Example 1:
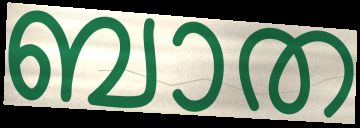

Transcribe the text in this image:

ബാത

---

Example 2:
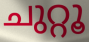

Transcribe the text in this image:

ചുറ്റൂ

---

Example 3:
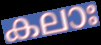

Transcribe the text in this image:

കലാഃ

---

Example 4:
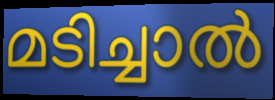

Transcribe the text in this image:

മടിച്ചാൽ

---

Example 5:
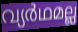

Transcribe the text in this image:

വ്യർഥമല്ല